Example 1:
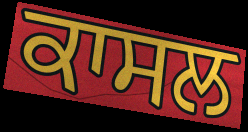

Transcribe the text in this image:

ਕਾਸਲ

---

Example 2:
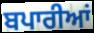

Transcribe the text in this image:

ਬਪਾਰੀਆਂ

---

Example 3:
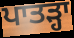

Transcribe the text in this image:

ਪਾਤੜ੍ਹਾ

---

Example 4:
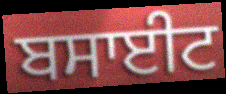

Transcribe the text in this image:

ਬਸਾਈਟ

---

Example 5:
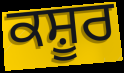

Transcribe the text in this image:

ਕਸ਼ੂਰ